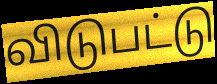
விடுபட்டு